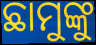
ଛାମୁଙ୍କୁ